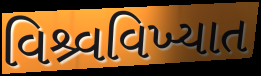
વિશ્ર્વવિખ્યાત